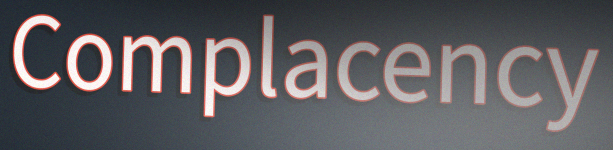
Complacency